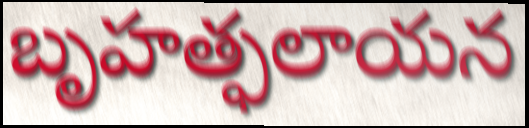
బృహత్ఫలాయన